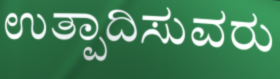
ಉತ್ಪಾದಿಸುವರು